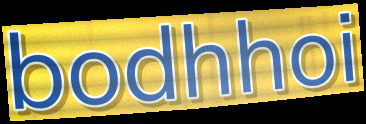
bodhhoi